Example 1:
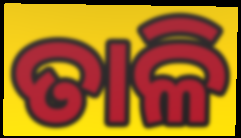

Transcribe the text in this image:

ତାଳି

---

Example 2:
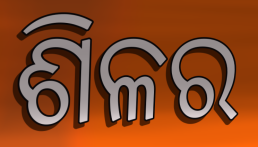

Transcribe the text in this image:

ଶିଳର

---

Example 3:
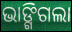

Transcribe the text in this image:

ଭାଙ୍ଗିଗଲା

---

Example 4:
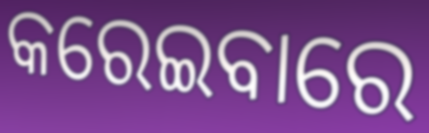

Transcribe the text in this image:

କରେଇବାରେ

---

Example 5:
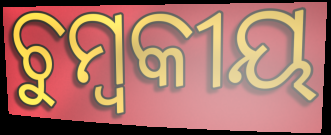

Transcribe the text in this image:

ଚୁମ୍ବକୀୟ